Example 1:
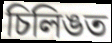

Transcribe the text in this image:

চিলিঙত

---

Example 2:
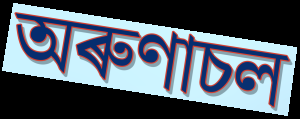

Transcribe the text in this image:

অৰুণাচল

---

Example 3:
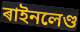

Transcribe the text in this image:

ৰাইনলেণ্ড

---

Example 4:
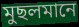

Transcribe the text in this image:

মুছলমানে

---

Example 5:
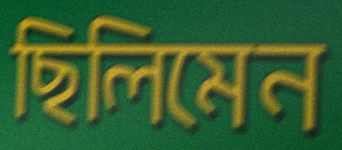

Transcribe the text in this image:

ছিলিমেন